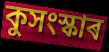
কুসংস্কাৰ